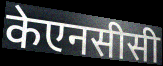
केएनसीसी